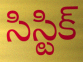
సిస్టిక్